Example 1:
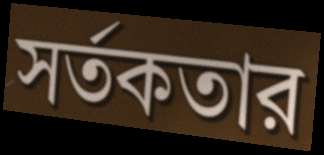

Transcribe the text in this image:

সর্তকতার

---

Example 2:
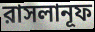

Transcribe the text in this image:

রাসলানূফ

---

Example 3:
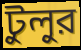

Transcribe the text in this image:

টুলুর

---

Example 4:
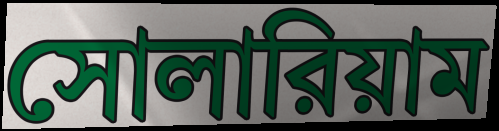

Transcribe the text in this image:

সোলারিয়াম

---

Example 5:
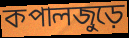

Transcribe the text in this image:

কপালজুড়ে